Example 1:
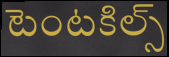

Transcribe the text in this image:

టెంటకిల్స్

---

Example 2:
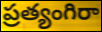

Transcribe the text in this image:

ప్రత్యంగిరా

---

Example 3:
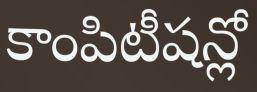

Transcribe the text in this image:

కాంపిటీషన్లో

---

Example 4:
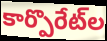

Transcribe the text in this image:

కార్పొరేట్‌ల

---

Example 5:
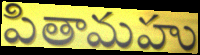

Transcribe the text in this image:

పితామహు